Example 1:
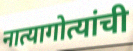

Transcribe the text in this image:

नात्यागोत्यांची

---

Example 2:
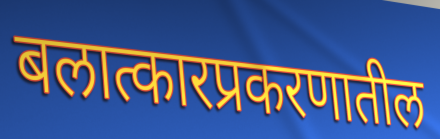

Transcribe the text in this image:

बलात्कारप्रकरणातील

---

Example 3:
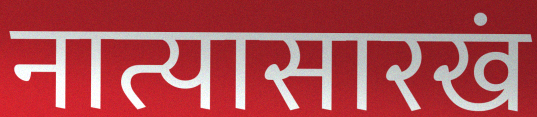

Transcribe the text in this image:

नात्यासारखं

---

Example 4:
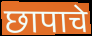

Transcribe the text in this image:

छापाचे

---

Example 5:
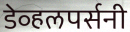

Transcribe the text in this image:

डेव्हलपर्सनी